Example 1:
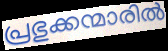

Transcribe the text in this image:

പ്രഭുക്കന്മാരിൽ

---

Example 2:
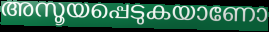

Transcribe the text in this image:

അസൂയപ്പെടുകയാണോ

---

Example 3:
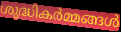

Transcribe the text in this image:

ശുദ്ധികർമ്മങ്ങൾ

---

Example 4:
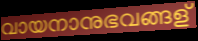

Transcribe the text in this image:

വായനാനുഭവങ്ങള്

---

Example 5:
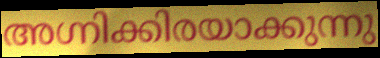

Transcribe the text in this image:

അഗ്നിക്കിരയാക്കുന്നു